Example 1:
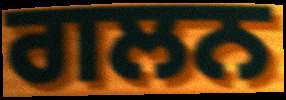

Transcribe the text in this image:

ਗਲਨ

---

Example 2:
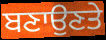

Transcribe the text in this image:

ਬਣਾਉਣਤੇ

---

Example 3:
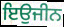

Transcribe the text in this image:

ਇਉਜੀਨ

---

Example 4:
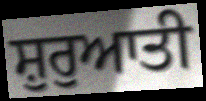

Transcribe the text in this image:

ਸ਼ੁਰੁਆਤੀ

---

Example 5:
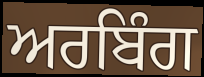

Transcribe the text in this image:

ਅਰਬਿੰਗ